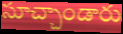
సూచ్చాండారు